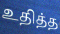
உதித்த